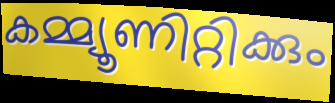
കമ്മ്യൂണിറ്റിക്കും